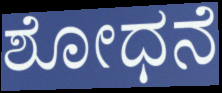
ಶೋಧನೆ